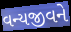
વન્યજીવને